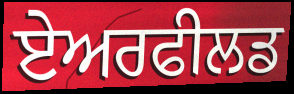
ਏਅਰਫੀਲਡ